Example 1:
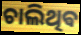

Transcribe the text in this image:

ଚାଲିଥିଵ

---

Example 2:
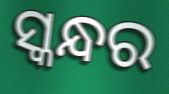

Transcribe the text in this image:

ସ୍କନ୍ଧର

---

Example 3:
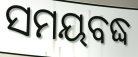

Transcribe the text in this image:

ସମୟବଦ୍ଧ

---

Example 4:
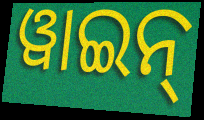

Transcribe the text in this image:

ୱାଇନ୍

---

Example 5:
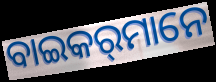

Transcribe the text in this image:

ବାଇକର୍‌ମାନେ